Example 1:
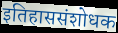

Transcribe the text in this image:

इतिहाससंशोधक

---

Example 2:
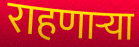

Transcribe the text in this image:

राहणार्‍या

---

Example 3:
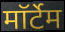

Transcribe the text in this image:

मॉर्टेम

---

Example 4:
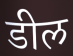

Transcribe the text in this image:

डील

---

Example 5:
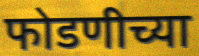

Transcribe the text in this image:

फोडणीच्या